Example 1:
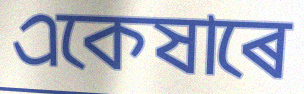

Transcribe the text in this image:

একেষাৰে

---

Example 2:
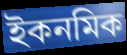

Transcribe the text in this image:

ইকনমিক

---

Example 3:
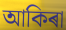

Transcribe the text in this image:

আকিৰা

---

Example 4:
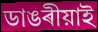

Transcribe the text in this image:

ডাঙৰীয়াই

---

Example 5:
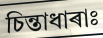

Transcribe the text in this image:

চিন্তাধাৰাঃ